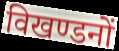
विखण्डनों